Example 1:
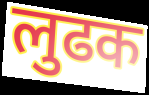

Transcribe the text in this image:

लुढक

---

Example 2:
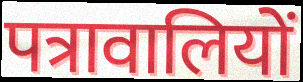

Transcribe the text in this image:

पत्रावालियों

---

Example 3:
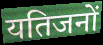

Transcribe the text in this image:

यतिजनों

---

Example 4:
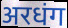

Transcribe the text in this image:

अरधंग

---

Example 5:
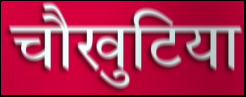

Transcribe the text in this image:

चौखुटिया